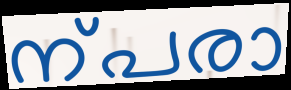
ന്പരാ